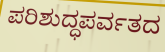
ಪರಿಶುದ್ಧಪರ್ವತದ